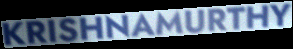
KRISHNAMURTHY